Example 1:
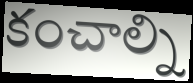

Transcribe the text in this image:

కంచాల్ని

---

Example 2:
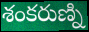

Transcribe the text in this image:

శంకరుణ్ని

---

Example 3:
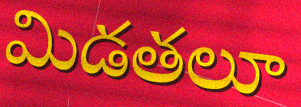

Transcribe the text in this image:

మిడతలూ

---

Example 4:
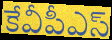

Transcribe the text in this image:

కేవీపీఎస్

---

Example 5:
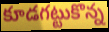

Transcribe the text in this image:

కూడగట్టుకొన్న